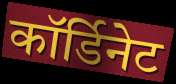
कॉर्डिनेट